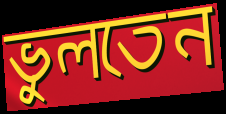
ভুলতেন